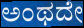
ಅಂಥದೇ